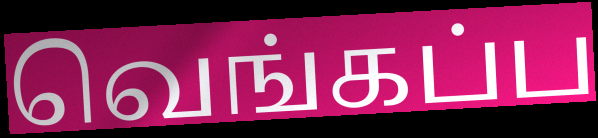
வெங்கப்ப